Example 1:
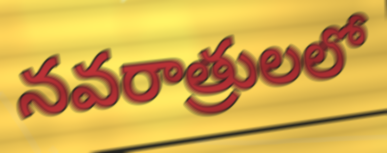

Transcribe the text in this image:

నవరాత్రులలో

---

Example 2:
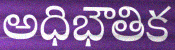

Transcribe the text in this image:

అధిభౌతిక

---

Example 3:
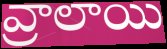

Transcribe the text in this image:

వ్రాలాయి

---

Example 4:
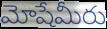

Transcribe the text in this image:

మోషేమీరు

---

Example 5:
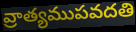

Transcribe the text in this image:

వ్రాత్యముపవదతి